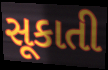
સૂકાતી